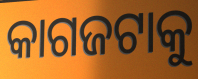
କାଗଜଟାକୁ